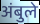
अंबुले